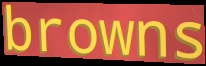
browns